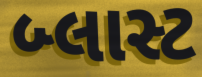
બ્લાસ્ટ